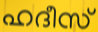
ഹദീസ്